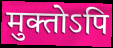
मुक्तोऽपि